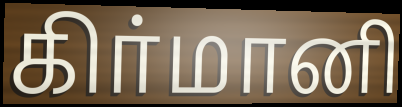
கிர்மானி